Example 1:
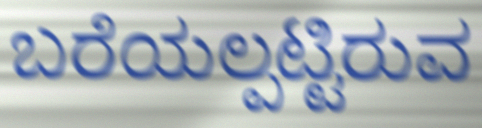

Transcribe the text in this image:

ಬರೆಯಲ್ಪಟ್ಟಿರುವ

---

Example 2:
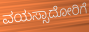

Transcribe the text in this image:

ವಯಸ್ಸಾದೋರಿಗೆ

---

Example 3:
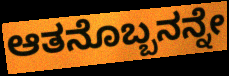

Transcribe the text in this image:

ಆತನೊಬ್ಬನನ್ನೇ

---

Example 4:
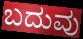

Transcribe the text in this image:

ಬದುವು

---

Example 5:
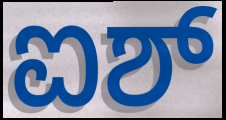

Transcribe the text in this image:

ಐಶ್